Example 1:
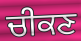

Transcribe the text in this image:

ਚੀਕਣ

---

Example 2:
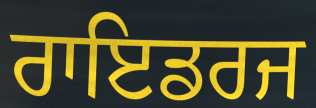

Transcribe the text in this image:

ਰਾਇਡਰਜ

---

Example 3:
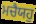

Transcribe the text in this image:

ਮਚੈਯਹੁ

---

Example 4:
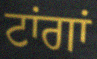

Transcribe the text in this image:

ਟਾਂਗਾਂ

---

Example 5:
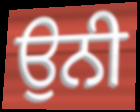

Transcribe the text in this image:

ਉਨੀ